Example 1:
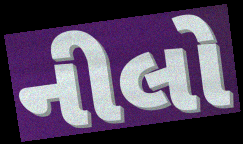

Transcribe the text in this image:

નીલો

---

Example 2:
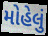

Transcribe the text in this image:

મોહેલું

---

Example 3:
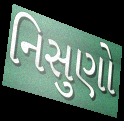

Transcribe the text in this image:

નિસુણો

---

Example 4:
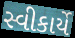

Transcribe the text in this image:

સ્વીકાર્યે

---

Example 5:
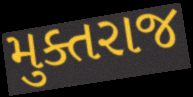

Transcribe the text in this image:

મુક્તરાજ